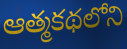
ఆత్మకథలోని